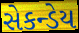
સેકન્ડેય